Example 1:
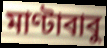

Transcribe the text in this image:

মাণ্টাবাবু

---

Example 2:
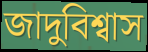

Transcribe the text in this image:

জাদুবিশ্বাস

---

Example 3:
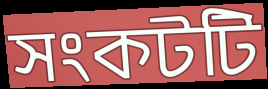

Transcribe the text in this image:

সংকটটি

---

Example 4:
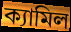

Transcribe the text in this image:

ক্যামিল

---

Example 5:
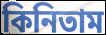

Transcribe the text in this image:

কিনিতাম